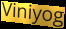
Viniyog